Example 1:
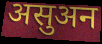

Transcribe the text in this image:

असुअन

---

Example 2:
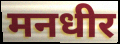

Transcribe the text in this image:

मनधीर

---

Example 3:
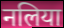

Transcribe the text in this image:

नलिया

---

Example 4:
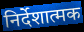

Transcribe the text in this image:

निर्देशात्मक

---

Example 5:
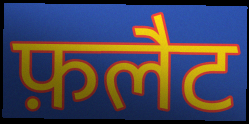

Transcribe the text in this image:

फ़लैट